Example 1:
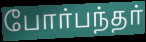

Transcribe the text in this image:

போர்பந்தர்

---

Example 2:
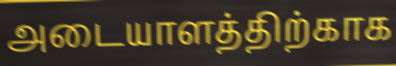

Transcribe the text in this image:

அடையாளத்திற்காக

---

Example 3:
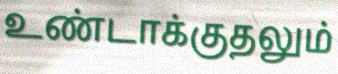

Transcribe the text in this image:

உண்டாக்குதலும்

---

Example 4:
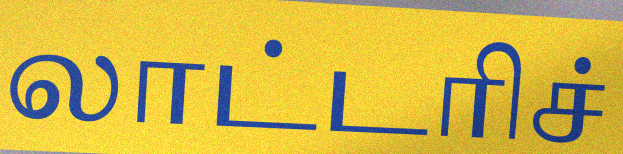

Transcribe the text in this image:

லாட்டரிச்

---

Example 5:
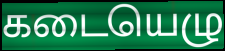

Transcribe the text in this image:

கடையெழு